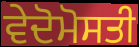
ਵੇਦੋਮੋਸਤੀ